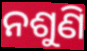
ନଶୁଣି